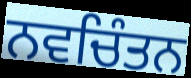
ਨਵਚਿੰਤਨ